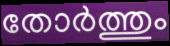
തോർത്തും